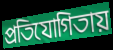
প্রতিযোগিতায়